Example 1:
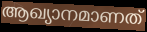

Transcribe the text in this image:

ആഖ്യാനമാണത്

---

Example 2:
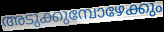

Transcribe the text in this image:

അടുക്കുമ്പോഴേക്കും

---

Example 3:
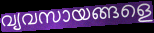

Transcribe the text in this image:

വ്യവസായങ്ങളെ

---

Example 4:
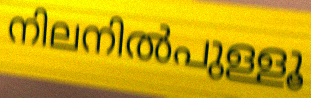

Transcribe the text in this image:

നിലനിൽപുള്ളൂ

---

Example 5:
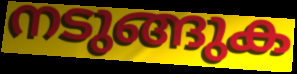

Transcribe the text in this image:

നടുങ്ങുക